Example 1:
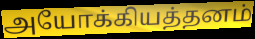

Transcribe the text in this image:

அயோக்கியத்தனம்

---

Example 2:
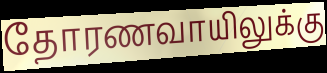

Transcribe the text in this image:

தோரணவாயிலுக்கு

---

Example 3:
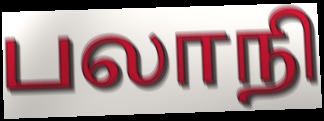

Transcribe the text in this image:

பலாநி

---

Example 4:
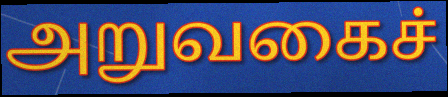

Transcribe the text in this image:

அறுவகைச்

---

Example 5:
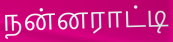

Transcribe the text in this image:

நன்னராட்டி